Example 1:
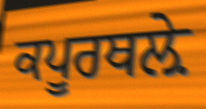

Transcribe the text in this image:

ਕਪੂਰਥਲ਼ੇ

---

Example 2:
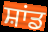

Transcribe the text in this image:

ਸ਼ਾਂਡ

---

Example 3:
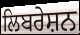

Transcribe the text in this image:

ਲਿਬਰੇਸ਼ਨ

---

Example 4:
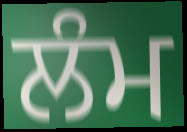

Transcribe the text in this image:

ਲੰਮ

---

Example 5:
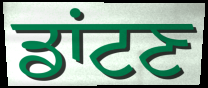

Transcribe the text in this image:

ਡਾਂਟਣ